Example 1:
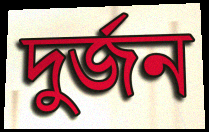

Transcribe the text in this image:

দুর্জন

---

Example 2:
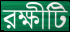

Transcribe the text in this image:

রক্ষীটি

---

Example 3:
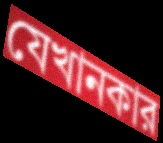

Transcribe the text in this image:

যেখানকার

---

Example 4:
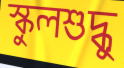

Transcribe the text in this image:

স্কুলশুদ্ধু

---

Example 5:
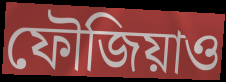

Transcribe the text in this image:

ফৌজিয়াও